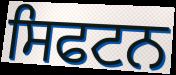
ਸਿਫਟਨ